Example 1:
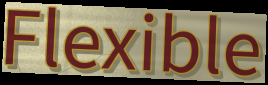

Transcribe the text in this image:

Flexible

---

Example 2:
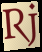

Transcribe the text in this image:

Rj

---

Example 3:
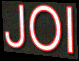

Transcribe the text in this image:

JOI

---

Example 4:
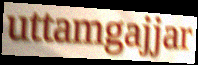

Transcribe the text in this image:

uttamgajjar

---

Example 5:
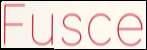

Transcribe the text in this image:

Fusce